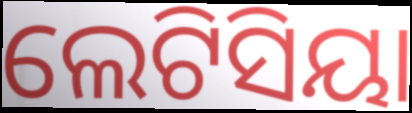
ଲେଟିସିୟା